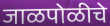
जाळपोळीचे